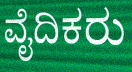
ವೈದಿಕರು